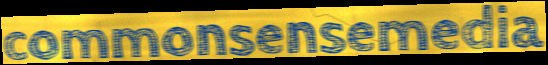
commonsensemedia